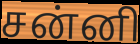
சன்னி